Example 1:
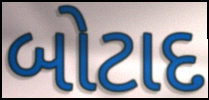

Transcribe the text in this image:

બોટાદ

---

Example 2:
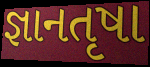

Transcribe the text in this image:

જ્ઞાનતૃષા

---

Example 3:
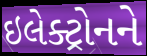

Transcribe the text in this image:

ઇલેક્ટ્રોનને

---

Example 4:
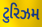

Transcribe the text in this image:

ટુરિઝમ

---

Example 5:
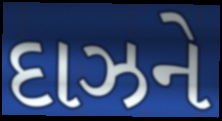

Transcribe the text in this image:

દાઝને